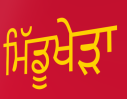
ਮਿੱਡੂਖੇੜਾ